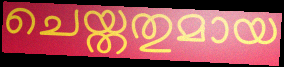
ചെയ്തതുമായ